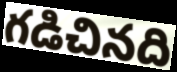
గడిచినది